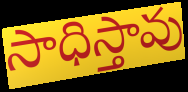
సాధిస్తావు